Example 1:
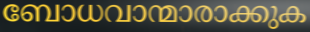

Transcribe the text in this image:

ബോധവാന്മാരാക്കുക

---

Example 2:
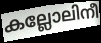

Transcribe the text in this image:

കല്ലോലിനീ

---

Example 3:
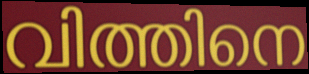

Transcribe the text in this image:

വിത്തിനെ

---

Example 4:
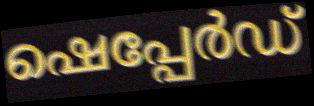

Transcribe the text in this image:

ഷെപ്പേർഡ്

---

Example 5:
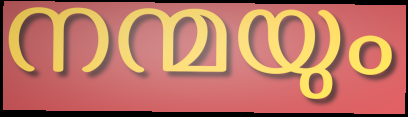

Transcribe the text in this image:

നന്മയും